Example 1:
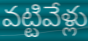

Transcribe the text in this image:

వట్టివేళ్లు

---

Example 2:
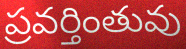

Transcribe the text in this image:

ప్రవర్తింతువు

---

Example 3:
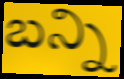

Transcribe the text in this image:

బన్ని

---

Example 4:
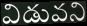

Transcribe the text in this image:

విడువని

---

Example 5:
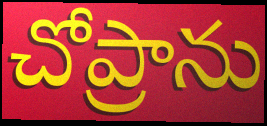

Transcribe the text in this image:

చోప్రాను